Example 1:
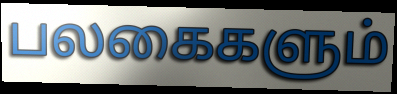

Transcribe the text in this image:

பலகைகளும்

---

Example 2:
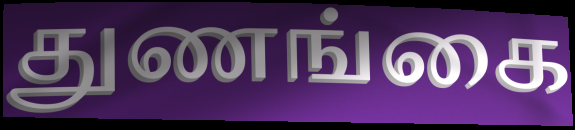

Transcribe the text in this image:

துணங்கை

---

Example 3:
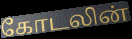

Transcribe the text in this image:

கோடலின்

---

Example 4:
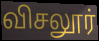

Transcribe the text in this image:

விசலூர்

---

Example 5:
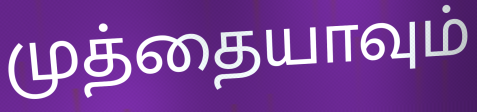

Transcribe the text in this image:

முத்தையாவும்